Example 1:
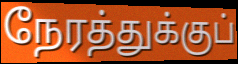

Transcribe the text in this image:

நேரத்துக்குப்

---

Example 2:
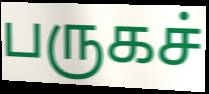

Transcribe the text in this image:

பருகச்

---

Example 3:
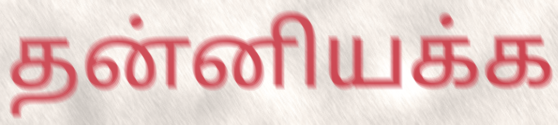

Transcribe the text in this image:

தன்னியக்க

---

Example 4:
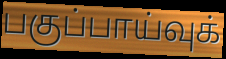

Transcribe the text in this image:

பகுப்பாய்வுக்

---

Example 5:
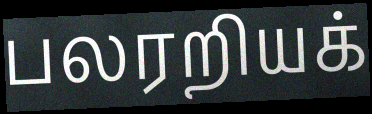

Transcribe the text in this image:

பலரறியக்